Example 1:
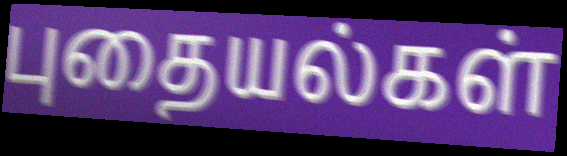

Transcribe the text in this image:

புதையல்கள்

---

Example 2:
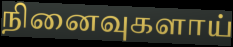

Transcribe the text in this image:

நினைவுகளாய்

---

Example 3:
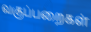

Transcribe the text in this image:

வகுப்பறைகள்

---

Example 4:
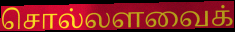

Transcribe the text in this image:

சொல்லளவைக்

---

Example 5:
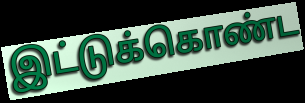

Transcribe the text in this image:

இட்டுக்கொண்ட